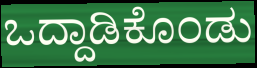
ಒದ್ದಾಡಿಕೊಂಡು